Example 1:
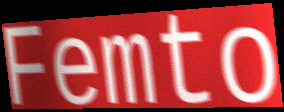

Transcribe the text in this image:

Femto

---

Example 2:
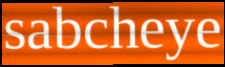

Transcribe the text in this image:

sabcheye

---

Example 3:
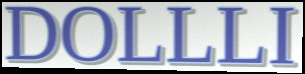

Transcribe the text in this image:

DOLLLI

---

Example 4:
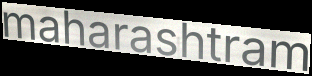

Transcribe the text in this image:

maharashtram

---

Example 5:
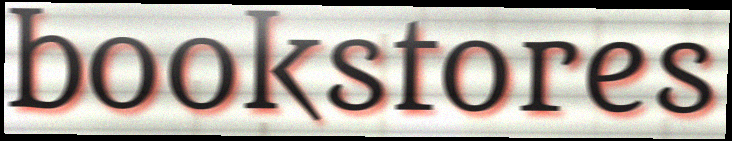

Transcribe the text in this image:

bookstores